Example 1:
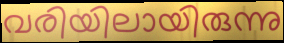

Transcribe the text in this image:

വരിയിലായിരുന്നു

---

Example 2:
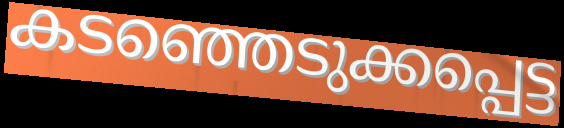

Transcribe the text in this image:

കടഞ്ഞെടുക്കപ്പെട്ട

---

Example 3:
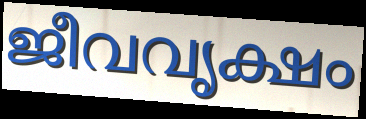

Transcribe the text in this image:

ജീവവൃക്ഷം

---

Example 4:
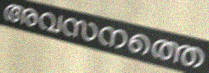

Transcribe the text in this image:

അവസനത്തെ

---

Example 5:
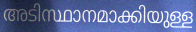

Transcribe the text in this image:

അടിസ്ഥാനമാക്കിയുള്ള